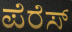
ಪೆರೆಸ್